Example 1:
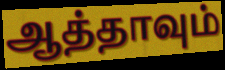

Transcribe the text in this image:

ஆத்தாவும்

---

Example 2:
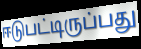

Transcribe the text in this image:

ஈடுபட்டிருப்பது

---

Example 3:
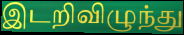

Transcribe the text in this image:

இடறிவிழுந்து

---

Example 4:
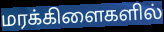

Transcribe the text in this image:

மரக்கிளைகளில்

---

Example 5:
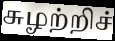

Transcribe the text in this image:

சுழற்றிச்